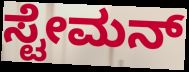
ಸ್ಟೇಮನ್